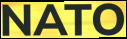
NATO